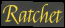
Ratchet